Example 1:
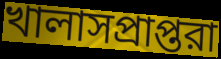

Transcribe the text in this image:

খালাসপ্রাপ্তরা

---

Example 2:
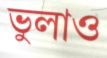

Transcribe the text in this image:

ভুলাও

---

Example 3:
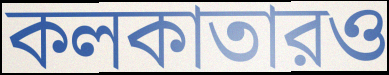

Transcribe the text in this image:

কলকাতারও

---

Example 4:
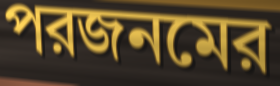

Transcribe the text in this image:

পরজনমের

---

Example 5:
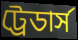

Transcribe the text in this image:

ট্রেডার্স